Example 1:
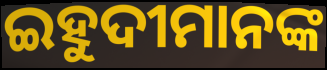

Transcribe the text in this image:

ଇହୁଦୀମାନଙ୍କ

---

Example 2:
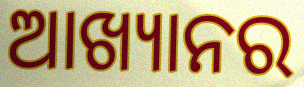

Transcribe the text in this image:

ଆଖ୍ୟାନର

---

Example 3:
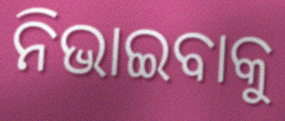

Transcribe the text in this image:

ନିଭାଇବାକୁ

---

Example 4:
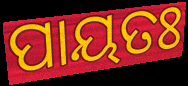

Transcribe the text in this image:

ପାୟତଃ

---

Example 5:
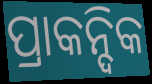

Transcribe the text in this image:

ପ୍ରାକନ୍ଦିକ